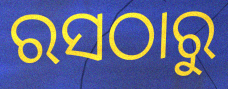
ରସଠାରୁ